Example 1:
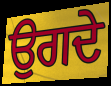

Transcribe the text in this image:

ਉਗਦੇ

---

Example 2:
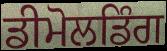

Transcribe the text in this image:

ਡੀਮੋਲਡਿੰਗ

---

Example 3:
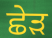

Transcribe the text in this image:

ਛੇੜ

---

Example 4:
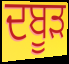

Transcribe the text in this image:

ਦਬੂੜ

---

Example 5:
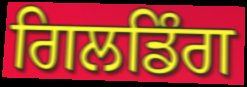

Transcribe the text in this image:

ਗਿਲਡਿੰਗ